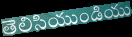
తెలిసియుండియు